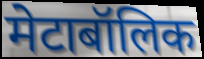
मेटाबॉलिक